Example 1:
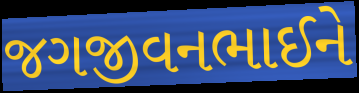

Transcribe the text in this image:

જગજીવનભાઈને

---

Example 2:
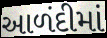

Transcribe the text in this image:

આળંદીમાં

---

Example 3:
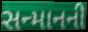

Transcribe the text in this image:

સન્માનની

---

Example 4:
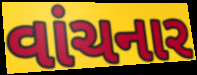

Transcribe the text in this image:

વાંચનાર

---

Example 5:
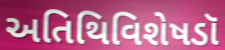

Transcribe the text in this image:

અતિથિવિશેષડૉ